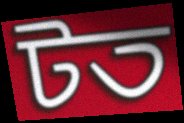
টত